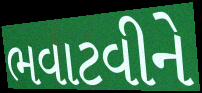
ભવાટવીને